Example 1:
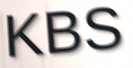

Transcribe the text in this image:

KBS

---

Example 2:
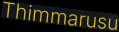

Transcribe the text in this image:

Thimmarusu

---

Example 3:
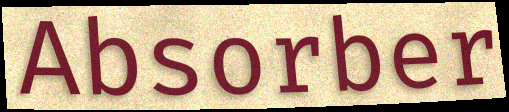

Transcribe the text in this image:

Absorber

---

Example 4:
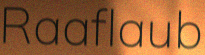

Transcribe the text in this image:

Raaflaub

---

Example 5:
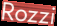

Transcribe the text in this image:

Rozzi